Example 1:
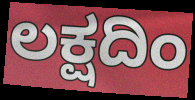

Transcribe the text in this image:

ಲಕ್ಷದಿಂ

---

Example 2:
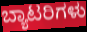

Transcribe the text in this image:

ಬ್ಯಾಟರಿಗಳು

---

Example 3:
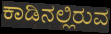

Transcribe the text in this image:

ಕಾಡಿನಲ್ಲಿರುವ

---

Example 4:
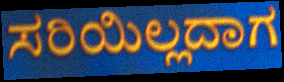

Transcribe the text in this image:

ಸರಿಯಿಲ್ಲದಾಗ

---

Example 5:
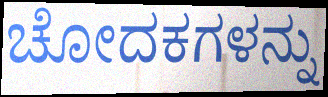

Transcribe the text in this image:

ಚೋದಕಗಳನ್ನು